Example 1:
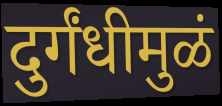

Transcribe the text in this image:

दुर्गंधीमुळं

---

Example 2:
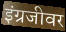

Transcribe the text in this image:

इंग्रजीवर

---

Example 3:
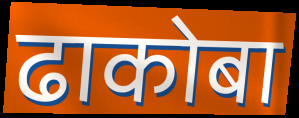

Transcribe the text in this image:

ढाकोबा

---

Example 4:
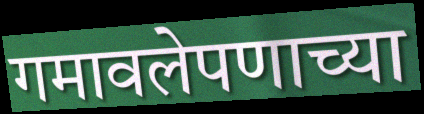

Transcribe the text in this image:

गमावलेपणाच्या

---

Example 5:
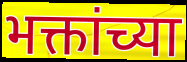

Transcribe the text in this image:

भक्तांच्या